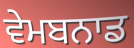
ਵੇਮਬਨਾਡ